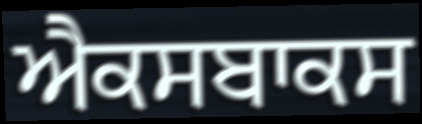
ਐਕਸਬਾਕਸ